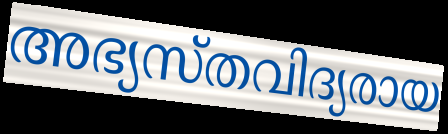
അഭ്യസ്തവിദ്യരായ